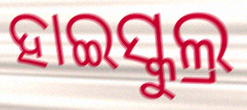
ହାଇସ୍କୁଲ୍ର